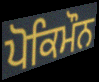
ਪੋਕਿਮੌਨ